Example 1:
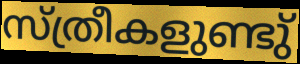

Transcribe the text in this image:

സ്ത്രീകളുണ്ടു്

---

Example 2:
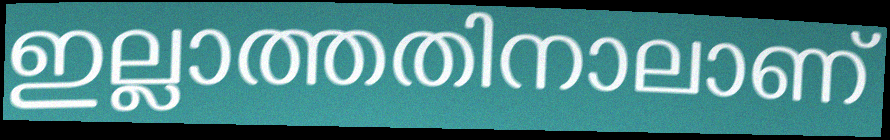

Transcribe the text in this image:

ഇല്ലാത്തതിനാലാണ്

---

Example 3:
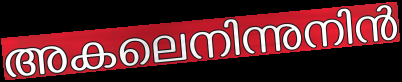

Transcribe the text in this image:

അകലെനിന്നുനിൻ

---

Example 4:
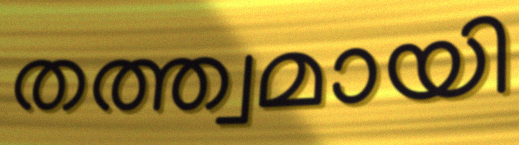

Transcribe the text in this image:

തത്ത്വമായി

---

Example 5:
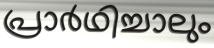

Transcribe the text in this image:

പ്രാർഥിച്ചാലും